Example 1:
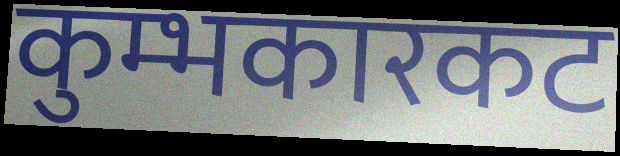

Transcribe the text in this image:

कुम्भकारकट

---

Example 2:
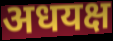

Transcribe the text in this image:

अधयक्ष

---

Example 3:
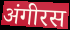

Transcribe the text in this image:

अंगीरस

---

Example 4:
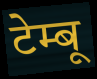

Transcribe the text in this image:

टेम्बू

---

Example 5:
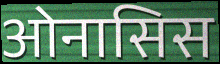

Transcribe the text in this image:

ओनासिस